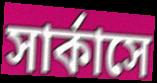
সার্কাসে